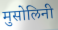
मुसोलिनी